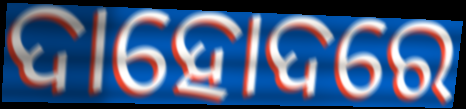
ଦାହୋଦରେ